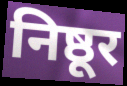
निष्ठूर